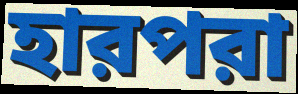
হারপরা